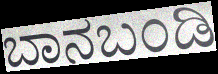
ಬಾನಬಂಡಿ